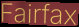
Fairfax